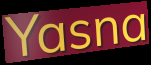
Yasna